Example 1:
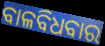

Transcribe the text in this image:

ବାଳବିଧବାର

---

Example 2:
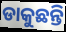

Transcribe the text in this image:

ଡାକୁଛନ୍ତି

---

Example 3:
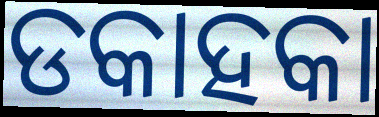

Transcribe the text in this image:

ଡକାହକା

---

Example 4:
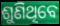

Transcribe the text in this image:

ଶୁଣିଥିବେ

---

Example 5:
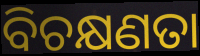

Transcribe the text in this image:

ବିଚକ୍ଷଣତା